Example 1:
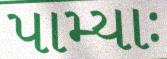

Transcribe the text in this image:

પામ્યાઃ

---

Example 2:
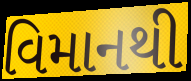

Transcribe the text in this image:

વિમાનથી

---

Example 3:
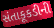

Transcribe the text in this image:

સંતાકૂકડીની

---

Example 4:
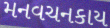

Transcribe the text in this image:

મનવચનકાય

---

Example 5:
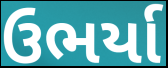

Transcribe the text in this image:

ઉભર્યા